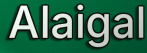
Alaigal